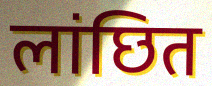
लांछित